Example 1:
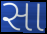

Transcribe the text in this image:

સા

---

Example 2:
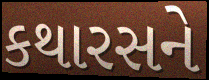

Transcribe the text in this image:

કથારસને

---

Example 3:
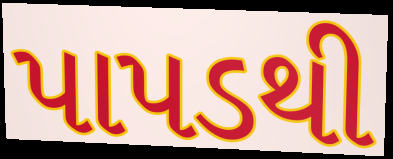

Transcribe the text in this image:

પાપડથી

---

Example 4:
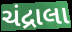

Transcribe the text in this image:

ચંદ્રાલા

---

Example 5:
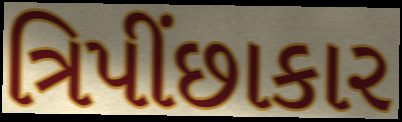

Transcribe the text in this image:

ત્રિપીંછાકાર